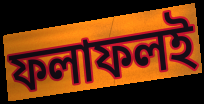
ফলাফলই